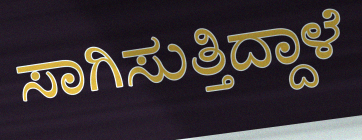
ಸಾಗಿಸುತ್ತಿದ್ದಾಳೆ